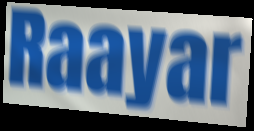
Raayar